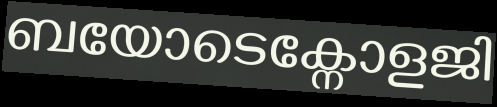
ബയോടെക്നോളജി